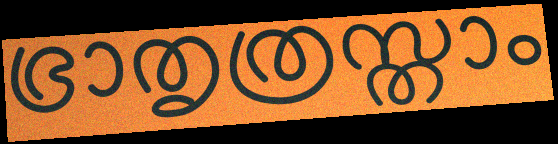
ഭ്രാതൃത്രസ്താം